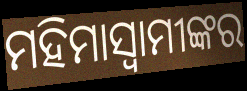
ମହିମାସ୍ୱାମୀଙ୍କର